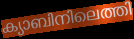
ക്യാബിനിലെത്തി